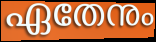
ഏതേനും